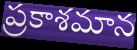
ప్రకాశమాన